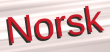
Norsk